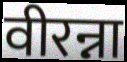
वीरन्ना